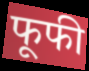
फूफी